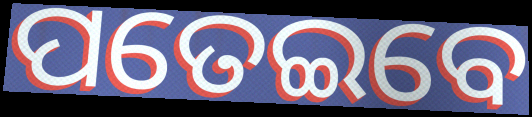
ପତେଇବେ